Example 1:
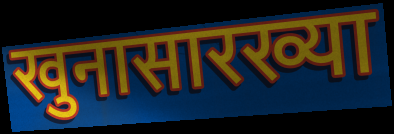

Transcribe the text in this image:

खुनासारख्या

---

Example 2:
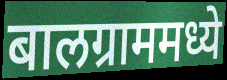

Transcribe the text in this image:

बालग्राममध्ये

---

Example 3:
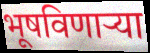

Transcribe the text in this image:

भूषविणार्‍या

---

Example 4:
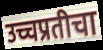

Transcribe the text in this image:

उच्चप्रतीचा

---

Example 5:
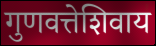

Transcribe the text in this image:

गुणवत्तेशिवाय